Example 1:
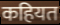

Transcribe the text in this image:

कहियत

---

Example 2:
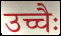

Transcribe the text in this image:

उच्चैः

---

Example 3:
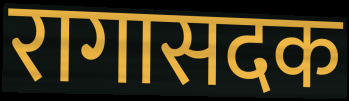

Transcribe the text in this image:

रागासदक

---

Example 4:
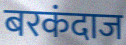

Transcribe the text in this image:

बरकंदाज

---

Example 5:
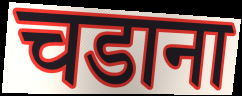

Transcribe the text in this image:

चडाना